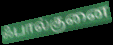
ஃபால்குனை